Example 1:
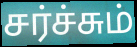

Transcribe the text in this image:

சர்ச்சும்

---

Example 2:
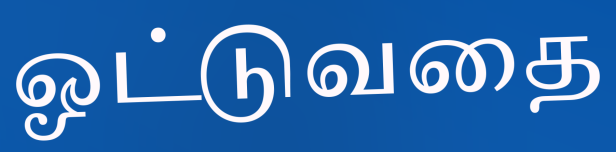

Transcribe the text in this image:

ஓட்டுவதை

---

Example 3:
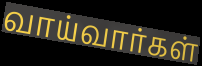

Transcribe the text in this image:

வாய்வார்கள்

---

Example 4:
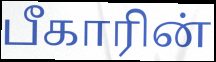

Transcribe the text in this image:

பீகாரின்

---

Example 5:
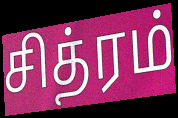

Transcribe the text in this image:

சித்ரம்